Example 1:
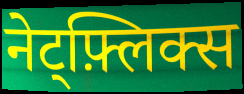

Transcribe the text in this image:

नेट्फ़्लिक्स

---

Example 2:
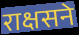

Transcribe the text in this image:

राक्षसने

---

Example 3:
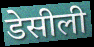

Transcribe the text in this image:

डेसीली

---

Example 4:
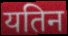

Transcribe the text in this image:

यतिन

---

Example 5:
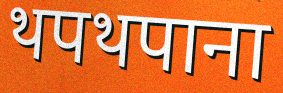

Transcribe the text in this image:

थपथपाना